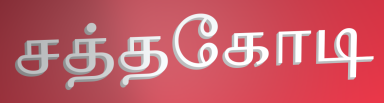
சத்தகோடி